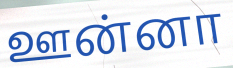
ஊன்னா